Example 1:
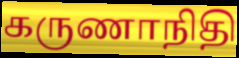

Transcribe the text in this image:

கருணாநிதி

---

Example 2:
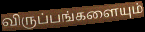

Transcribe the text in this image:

விருப்பங்களையும்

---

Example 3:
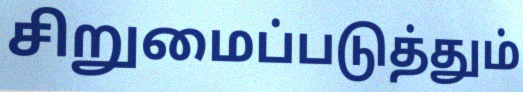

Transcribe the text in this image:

சிறுமைப்படுத்தும்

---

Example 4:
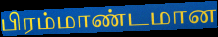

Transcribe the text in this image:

பிரம்மாண்டமான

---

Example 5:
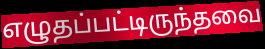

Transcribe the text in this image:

எழுதப்பட்டிருந்தவை